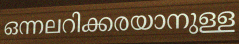
ഒന്നലറിക്കരയാനുള്ള